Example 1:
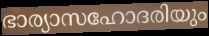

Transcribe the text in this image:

ഭാര്യാസഹോദരിയും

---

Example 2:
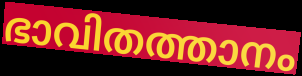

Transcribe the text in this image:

ഭാവിതത്താനം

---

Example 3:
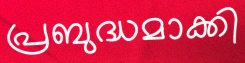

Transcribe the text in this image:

പ്രബുദ്ധമാക്കി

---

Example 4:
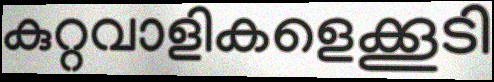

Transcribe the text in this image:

കുറ്റവാളികളെക്കൂടി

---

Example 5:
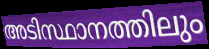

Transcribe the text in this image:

അടിസ്ഥാനത്തിലും